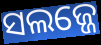
ସଲଜ୍ଜେ